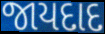
જાયદાદ